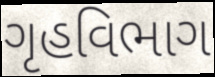
ગૃહવિભાગ